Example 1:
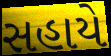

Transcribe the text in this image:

સહાયે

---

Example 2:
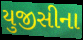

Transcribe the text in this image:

યુજીસીના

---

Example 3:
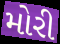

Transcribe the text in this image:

મોરી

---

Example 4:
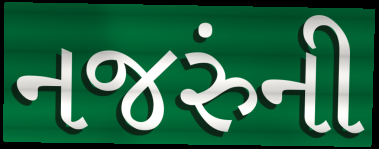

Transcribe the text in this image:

નજરુંની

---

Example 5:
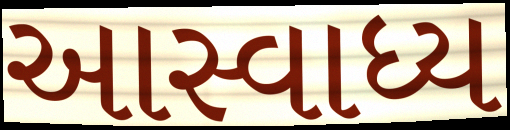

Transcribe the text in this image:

આસ્વાધ્ય